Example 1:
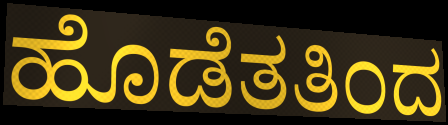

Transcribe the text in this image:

ಹೊಡೆತತಿಂದ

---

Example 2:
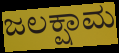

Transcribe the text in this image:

ಜಲಕ್ಷಾಮ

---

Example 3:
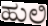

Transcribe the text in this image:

ಹುಲಿ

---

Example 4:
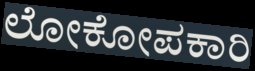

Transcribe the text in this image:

ಲೋಕೋಪಕಾರಿ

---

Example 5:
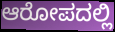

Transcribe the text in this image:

ಆರೋಪದಲ್ಲಿ